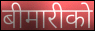
बीमारीको